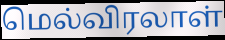
மெல்விரலாள்